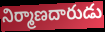
నిర్మాణదారుడు